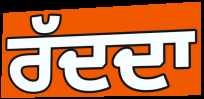
ਰੱਦਦਾ